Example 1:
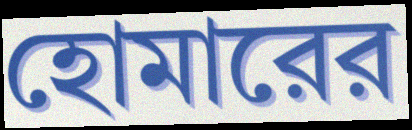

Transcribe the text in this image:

হোমারের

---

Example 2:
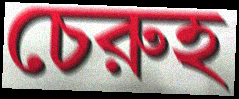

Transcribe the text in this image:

চেরুহ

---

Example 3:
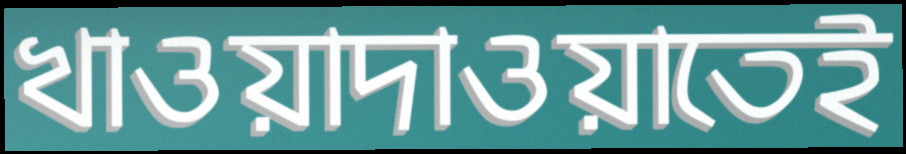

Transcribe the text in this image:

খাওয়াদাওয়াতেই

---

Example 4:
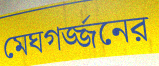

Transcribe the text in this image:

মেঘগর্জ্জনের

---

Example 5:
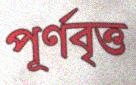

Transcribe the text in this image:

পূর্ণবৃত্ত